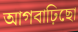
আগবাঢ়িছো